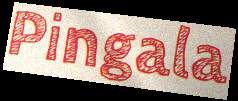
Pingala